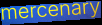
mercenary